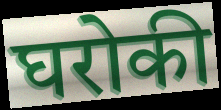
घरोकी